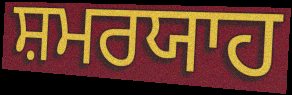
ਸ਼ਮਰਯਾਹ